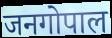
जनगोपाल